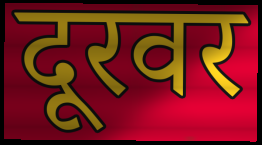
दूरवर